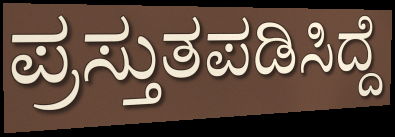
ಪ್ರಸ್ತುತಪಡಿಸಿದ್ದೆ